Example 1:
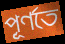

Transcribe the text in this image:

পূর্ণতে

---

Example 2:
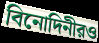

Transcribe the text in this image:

বিনোদিনীরও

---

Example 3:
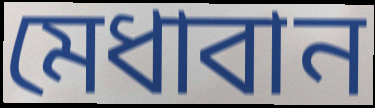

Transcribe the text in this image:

মেধাবান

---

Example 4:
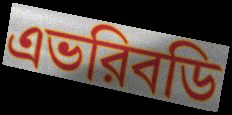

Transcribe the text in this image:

এভরিবডি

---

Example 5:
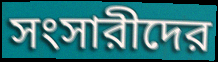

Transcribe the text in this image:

সংসারীদের